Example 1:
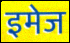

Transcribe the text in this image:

इमेज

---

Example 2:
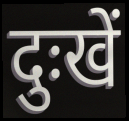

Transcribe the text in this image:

दुःखें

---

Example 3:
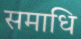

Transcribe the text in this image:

समाधि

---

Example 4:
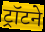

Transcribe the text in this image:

ट्रॉटने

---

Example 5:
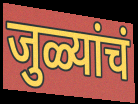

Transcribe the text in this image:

जुळ्यांचं